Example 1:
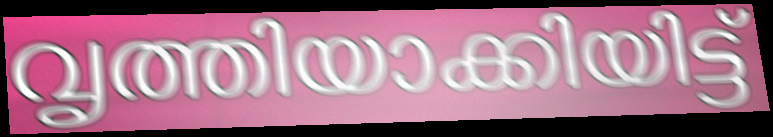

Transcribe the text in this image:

വൃത്തിയാക്കിയിട്ട്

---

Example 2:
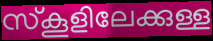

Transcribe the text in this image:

സ്കൂളിലേക്കുള്ള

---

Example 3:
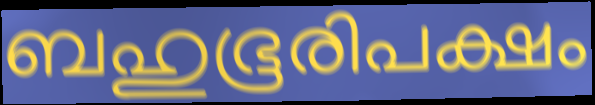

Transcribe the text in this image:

ബഹുഭൂരിപക്ഷം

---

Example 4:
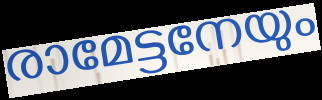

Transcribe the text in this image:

രാമേട്ടനേയും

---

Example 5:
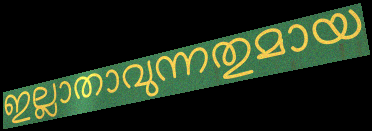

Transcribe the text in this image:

ഇല്ലാതാവുന്നതുമായ